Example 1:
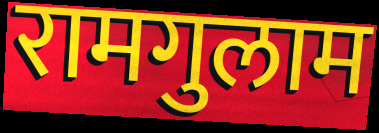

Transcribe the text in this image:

रामगुलाम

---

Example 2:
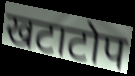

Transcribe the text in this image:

खटाटोप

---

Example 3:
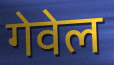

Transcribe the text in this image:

गेवेल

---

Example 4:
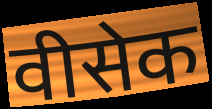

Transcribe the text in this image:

वीसेक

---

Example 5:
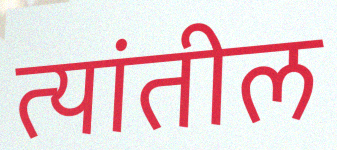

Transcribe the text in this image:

त्‍यांतील